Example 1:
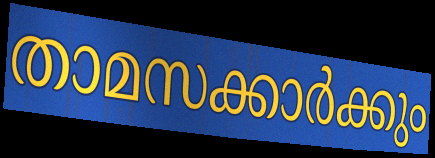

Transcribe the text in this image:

താമസക്കാർക്കും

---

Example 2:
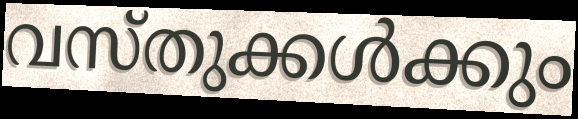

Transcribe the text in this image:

വസ്തുക്കൾക്കും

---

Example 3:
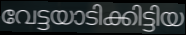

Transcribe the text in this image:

വേട്ടയാടിക്കിട്ടിയ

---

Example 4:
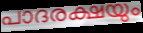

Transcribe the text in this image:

പാദരക്ഷയും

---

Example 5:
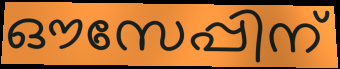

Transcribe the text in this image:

ഔസേപ്പിന്